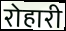
रोहारी